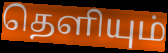
தெளியும்